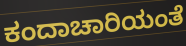
ಕಂದಾಚಾರಿಯಂತೆ